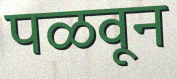
पळवून